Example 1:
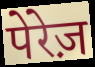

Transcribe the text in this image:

पेरेज़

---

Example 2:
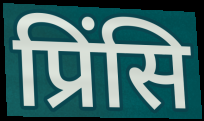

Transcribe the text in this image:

प्रिंसि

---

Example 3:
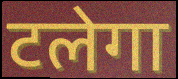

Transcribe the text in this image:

टलेगा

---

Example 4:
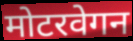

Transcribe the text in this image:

मोटरवेगन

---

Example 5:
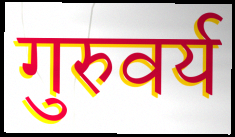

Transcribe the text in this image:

गुरुवर्य